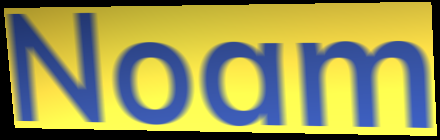
Noam